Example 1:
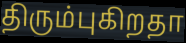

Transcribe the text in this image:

திரும்புகிறதா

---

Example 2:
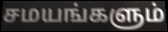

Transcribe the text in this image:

சமயங்களும்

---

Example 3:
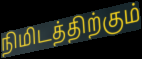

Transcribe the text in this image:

நிமிடத்திற்கும்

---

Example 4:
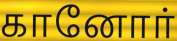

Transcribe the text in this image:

கானோர்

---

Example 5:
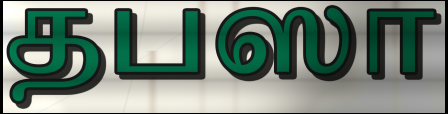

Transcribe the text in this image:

தபஸா